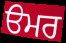
ੳਮਰ